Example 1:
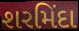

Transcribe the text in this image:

શરમિંદા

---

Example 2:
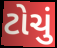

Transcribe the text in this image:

ટોચું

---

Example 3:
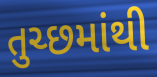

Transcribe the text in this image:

તુચ્છમાંથી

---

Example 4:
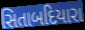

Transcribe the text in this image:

સિતાબદિયારા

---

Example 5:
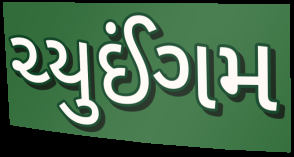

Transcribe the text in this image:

ચ્યુઈંગમ